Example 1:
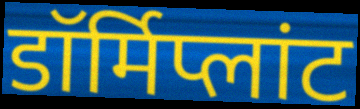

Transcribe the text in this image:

डॉर्मिप्लांट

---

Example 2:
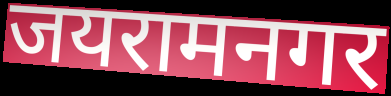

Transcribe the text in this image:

जयरामनगर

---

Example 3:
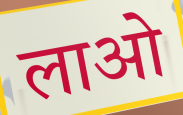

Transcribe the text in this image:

लाओ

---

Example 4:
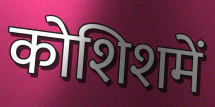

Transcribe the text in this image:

कोशिशमें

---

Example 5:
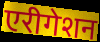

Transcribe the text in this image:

एरीगेशन